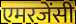
एमरजेंसी